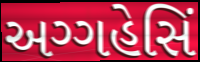
અગ્ગહેસિં